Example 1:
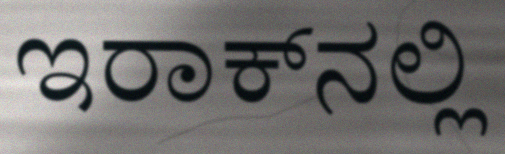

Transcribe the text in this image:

ಇರಾಕ್‌ನಲ್ಲಿ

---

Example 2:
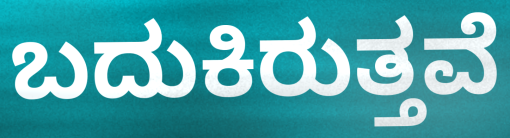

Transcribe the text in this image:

ಬದುಕಿರುತ್ತವೆ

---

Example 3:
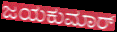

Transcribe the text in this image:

ಜಯಕುಮಾರ್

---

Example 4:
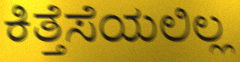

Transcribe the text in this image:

ಕಿತ್ತೆಸೆಯಲಿಲ್ಲ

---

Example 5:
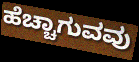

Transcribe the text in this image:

ಹೆಚ್ಚಾಗುವವು